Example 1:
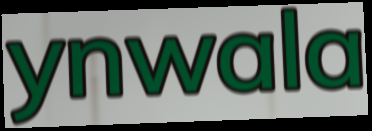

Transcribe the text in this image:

ynwala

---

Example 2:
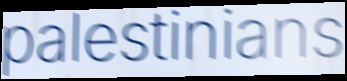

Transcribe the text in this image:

palestinians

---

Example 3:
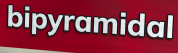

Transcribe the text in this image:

bipyramidal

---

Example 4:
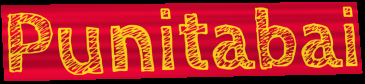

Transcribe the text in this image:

Punitabai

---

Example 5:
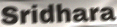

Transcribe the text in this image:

Sridhara